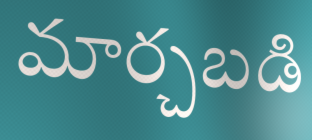
మార్చబడి